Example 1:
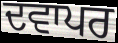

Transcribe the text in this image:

ਦਵਾਪਰ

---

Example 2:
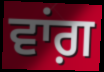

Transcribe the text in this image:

ਵਾਂਗ਼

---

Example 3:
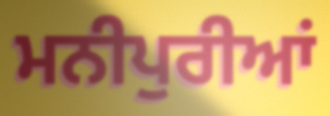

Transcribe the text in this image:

ਮਨੀਪੁਰੀਆਂ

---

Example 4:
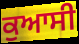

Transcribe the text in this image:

ਕੁਆਸੀ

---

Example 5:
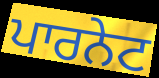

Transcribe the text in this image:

ਪਾਰਨੇਟ